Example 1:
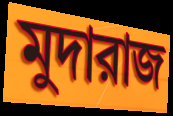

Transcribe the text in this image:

মুদারাজ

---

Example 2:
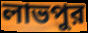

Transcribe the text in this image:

লাভপুর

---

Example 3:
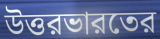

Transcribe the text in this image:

উত্তরভারতের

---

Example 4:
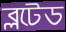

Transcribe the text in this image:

ব্লটেড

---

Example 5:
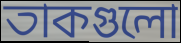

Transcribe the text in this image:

তাকগুলো